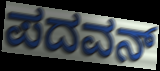
ಪದವನ್